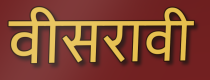
वीसरावी